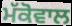
ਮੱਕੋਵਾਲ